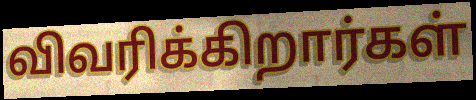
விவரிக்கிறார்கள்